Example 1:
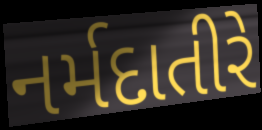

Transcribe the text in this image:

નર્મદાતીરે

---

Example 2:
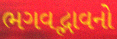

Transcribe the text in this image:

ભગવદ્ભાવનો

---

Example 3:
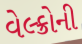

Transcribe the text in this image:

વેલ્ક્રોની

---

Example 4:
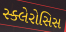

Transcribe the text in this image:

સ્ક્લેરોસિસ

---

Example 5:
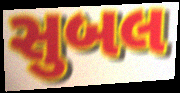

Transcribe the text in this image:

સુબલ